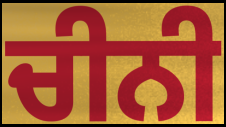
ਚੀਨੀ